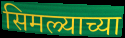
सिमल्याच्या